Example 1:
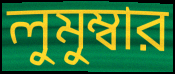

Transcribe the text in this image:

লুমুম্বার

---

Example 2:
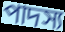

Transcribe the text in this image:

পাদস্য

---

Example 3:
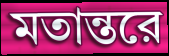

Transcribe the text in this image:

মতান্তরে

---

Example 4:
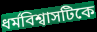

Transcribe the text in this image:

ধর্মবিশ্বাসটিকে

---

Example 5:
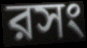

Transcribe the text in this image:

রসং